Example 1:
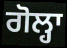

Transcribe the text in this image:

ਗੋਲ੍ਹਾ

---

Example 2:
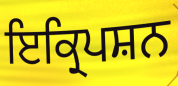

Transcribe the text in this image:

ਇਕ੍ਰਿਪਸ਼ਨ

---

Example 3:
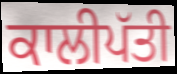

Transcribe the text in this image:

ਕਾਲੀਪੱਤੀ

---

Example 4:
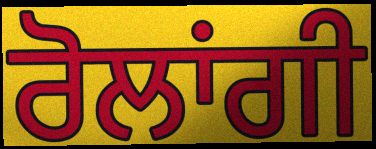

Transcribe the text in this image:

ਰੋਲਾਂਗੀ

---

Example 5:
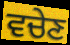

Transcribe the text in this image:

ਵਚੇਣ